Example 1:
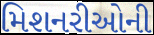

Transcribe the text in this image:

મિશનરીઓની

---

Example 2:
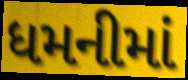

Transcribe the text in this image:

ધમનીમાં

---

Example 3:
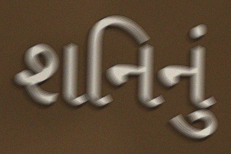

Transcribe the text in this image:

શનિનું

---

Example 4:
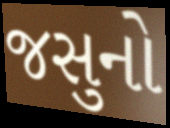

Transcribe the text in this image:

જસુનો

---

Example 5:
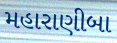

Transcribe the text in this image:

મહારાણીબા